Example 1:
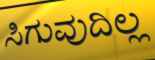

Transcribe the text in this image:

ಸಿಗುವುದಿಲ್ಲ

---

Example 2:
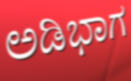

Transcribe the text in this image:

ಅಡಿಭಾಗ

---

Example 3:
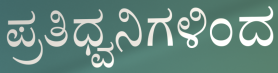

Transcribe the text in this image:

ಪ್ರತಿಧ್ವನಿಗಳಿಂದ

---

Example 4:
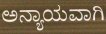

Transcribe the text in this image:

ಅನ್ಯಾಯವಾಗಿ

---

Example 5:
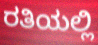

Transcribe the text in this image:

ರತಿಯಲ್ಲಿ